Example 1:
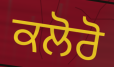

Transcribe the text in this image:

ਕਲੋਰੋ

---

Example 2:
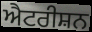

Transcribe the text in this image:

ਐਟਰੀਸ਼ਨ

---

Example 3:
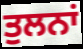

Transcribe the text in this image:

ਤੁਲਨਾਂ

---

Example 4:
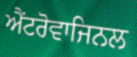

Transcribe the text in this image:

ਐਂਟਰੋਵਾਜਿਨਲ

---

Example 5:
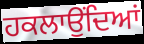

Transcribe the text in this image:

ਹਕਲਾਉਂਦਿਆਂ